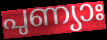
പുണ്യാഃ